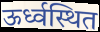
ऊर्ध्वस्थित